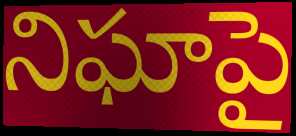
నిఘాపై